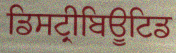
ਡਿਸਟ੍ਰੀਬਿਊਟਿਡ